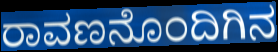
ರಾವಣನೊಂದಿಗಿನ